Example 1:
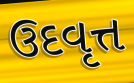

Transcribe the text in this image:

ઉદવૃત્ત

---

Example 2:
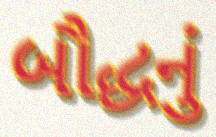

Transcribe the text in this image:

બૌદ્ધનું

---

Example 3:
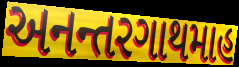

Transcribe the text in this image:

અનન્તરગાથમાહ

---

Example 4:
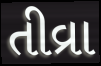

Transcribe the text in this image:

તીવ્રા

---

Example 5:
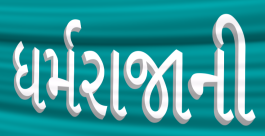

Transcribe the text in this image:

ધર્મરાજાની